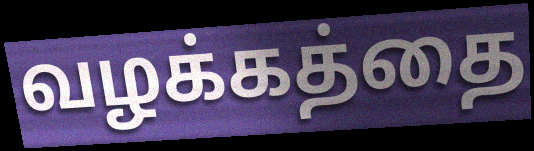
வழக்கத்தை